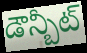
డౌన్బీట్